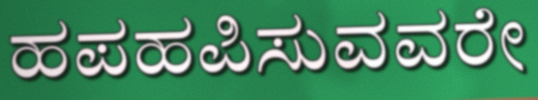
ಹಪಹಪಿಸುವವರೇ